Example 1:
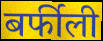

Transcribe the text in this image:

बर्फीली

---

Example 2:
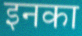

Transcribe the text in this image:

इनका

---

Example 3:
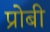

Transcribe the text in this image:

प्रोबी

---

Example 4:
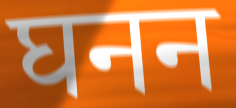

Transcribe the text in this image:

घनन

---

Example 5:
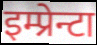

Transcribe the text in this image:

इम्प्रेन्टा